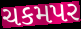
ચકમપર